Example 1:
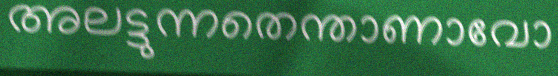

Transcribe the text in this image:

അലട്ടുന്നതെന്താണാവോ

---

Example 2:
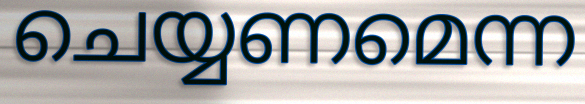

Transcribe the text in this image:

ചെയ്യണമെന്ന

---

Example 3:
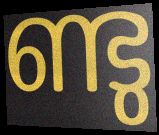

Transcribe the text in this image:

ണ്ടു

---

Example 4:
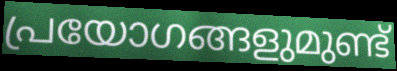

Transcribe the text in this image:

പ്രയോഗങ്ങളുമുണ്ട്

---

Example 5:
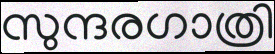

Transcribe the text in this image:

സുന്ദരഗാത്രി